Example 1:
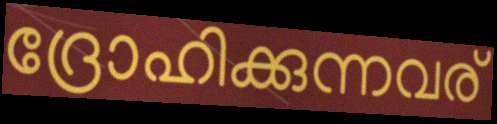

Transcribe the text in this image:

ദ്രോഹിക്കുന്നവര്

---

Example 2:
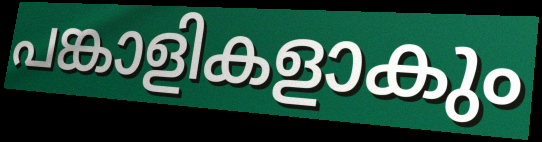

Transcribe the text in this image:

പങ്കാളികളാകും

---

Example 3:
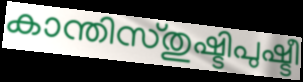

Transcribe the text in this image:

കാന്തിസ്തുഷ്ടിപുഷ്ടീ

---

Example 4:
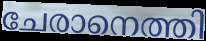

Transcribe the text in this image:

ചേരാനെത്തി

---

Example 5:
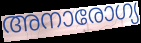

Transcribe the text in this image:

അനാരോഗ്യ